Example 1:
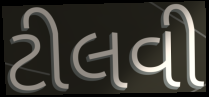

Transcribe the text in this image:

ટીલવી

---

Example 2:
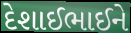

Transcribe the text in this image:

દેશાઈભાઈને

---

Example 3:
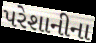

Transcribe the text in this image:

પરેશાનીના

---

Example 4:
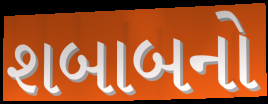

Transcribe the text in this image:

શબાબનો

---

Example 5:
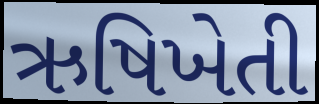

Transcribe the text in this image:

ઋષિખેતી